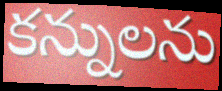
కన్నులను